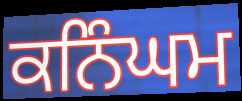
ਕਨਿੰਘਮ